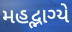
મહદ્ભાગ્યે